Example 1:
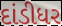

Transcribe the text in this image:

દાંડીધર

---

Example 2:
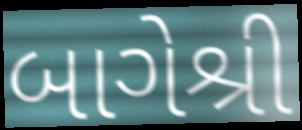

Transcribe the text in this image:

બાગેશ્રી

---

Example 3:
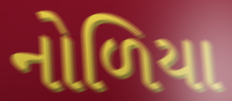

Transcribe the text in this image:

નોળિયા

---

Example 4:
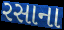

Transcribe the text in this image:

રસાના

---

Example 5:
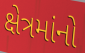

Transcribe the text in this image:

ક્ષેત્રમાંનો